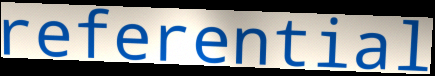
referential